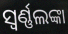
ସ୍ବର୍ଣ୍ଣଲଙ୍କା